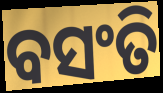
ବସଂତି